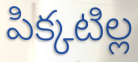
పిక్కటిల్ల